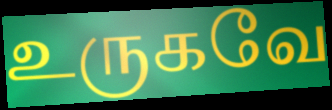
உருகவே